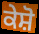
ਕੇਸ਼ੋ